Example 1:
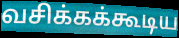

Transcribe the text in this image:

வசிக்கக்கூடிய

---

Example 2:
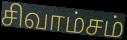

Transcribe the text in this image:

சிவாம்சம்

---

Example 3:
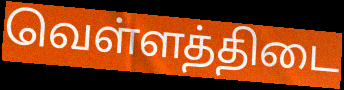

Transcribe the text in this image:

வெள்ளத்திடை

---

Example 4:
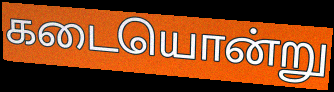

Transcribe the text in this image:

கடையொன்று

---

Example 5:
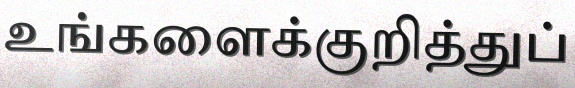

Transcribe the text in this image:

உங்களைக்குறித்துப்